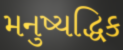
મનુષ્યદ્ધિક